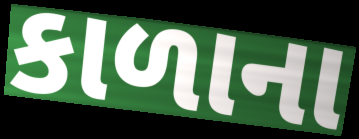
કાળાના